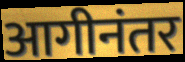
आगीनंतर